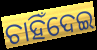
ଚାହିଁଦେଇ